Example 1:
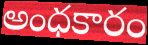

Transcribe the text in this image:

అంధకారం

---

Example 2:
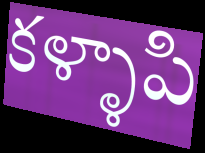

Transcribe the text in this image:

కళ్ళాపి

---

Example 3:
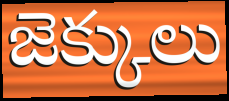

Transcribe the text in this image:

జెక్కులు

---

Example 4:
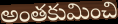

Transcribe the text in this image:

అంతకుమించి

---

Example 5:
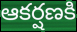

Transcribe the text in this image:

ఆకర్షణకి